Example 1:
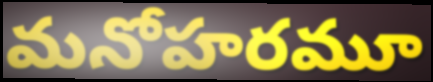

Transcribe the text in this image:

మనోహరమూ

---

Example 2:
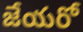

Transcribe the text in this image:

జేయరో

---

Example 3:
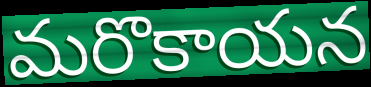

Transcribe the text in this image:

మరొకాయన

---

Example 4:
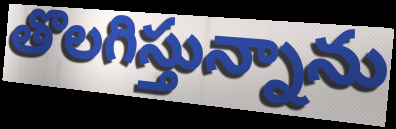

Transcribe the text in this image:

తొలగిస్తున్నాను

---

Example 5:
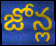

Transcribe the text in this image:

జోన్ల